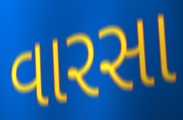
વારસા